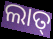
ଲାତ୍